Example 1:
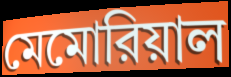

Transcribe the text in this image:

মেমোরিয়াল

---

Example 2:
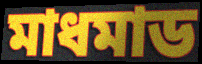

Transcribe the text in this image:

মাধমাড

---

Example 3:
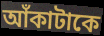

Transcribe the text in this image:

আঁকাটাকে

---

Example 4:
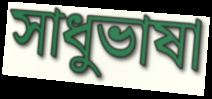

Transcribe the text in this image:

সাধুভাষা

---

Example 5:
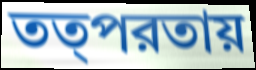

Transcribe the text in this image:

তত্পরতায়